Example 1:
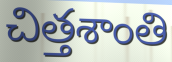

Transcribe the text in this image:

చిత్తశాంతి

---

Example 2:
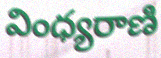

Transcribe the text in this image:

వింధ్యరాణి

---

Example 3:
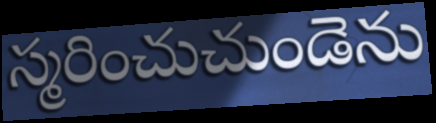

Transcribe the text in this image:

స్మరించుచుండెను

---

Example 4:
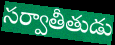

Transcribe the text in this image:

సర్వాతీతుడు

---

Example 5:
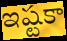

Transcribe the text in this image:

ఇష్టకా